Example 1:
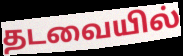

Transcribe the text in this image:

தடவையில்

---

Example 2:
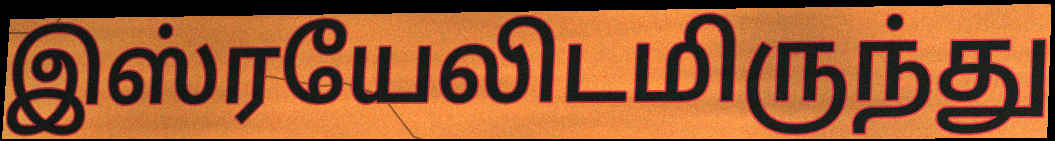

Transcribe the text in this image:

இஸ்ரயேலிடமிருந்து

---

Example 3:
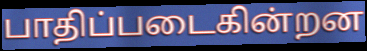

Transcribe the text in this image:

பாதிப்படைகின்றன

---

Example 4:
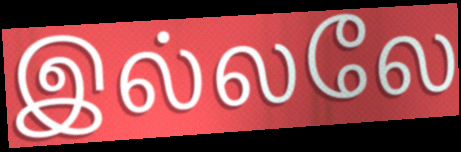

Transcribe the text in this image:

இல்லலே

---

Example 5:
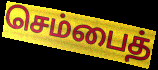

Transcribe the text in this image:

செம்பைத்